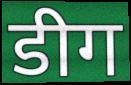
डीग